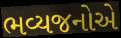
ભવ્યજનોએ